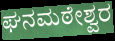
ಘನಮಠೇಶ್ವರ